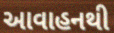
આવાહનથી